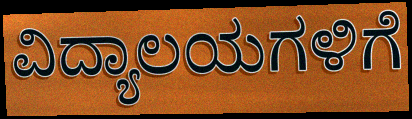
ವಿದ್ಯಾಲಯಗಳಿಗೆ